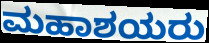
ಮಹಾಶಯರು